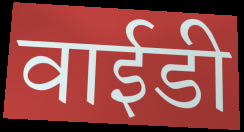
वाईडी